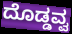
ದೊಡ್ಡವ್ವ